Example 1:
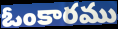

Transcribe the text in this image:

ఓంకారము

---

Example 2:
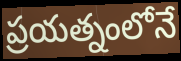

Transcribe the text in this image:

ప్రయత్నంలోనే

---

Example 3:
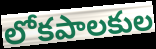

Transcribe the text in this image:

లోకపాలకుల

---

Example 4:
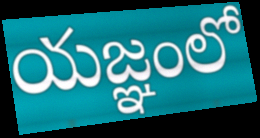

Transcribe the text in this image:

యజ్ఞంలో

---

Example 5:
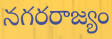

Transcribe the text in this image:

నగరరాజ్యం